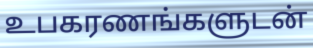
உபகரணங்களுடன்